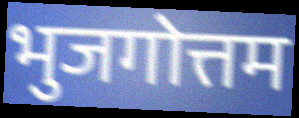
भुजगोत्तम